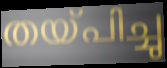
തയ്പിച്ചു